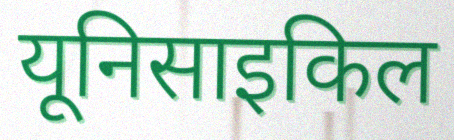
यूनिसाइकिल